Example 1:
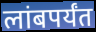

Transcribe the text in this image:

लांबपर्यंत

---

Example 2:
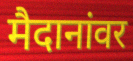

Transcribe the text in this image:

मैदानांवर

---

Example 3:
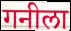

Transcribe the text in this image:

गनीला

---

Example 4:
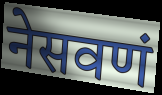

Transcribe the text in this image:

नेसवणं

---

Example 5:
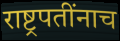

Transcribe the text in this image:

राष्ट्रपतींनाच